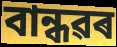
বান্ধৱৰ